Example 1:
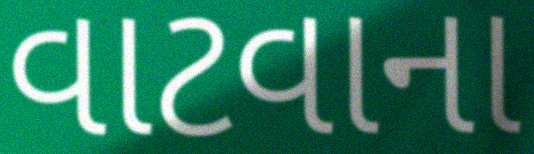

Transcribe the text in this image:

વાટવાના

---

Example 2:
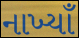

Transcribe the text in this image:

નાખ્યાઁ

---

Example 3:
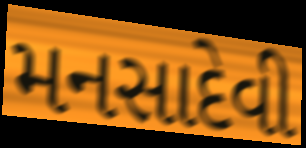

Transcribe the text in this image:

મનસાદેવી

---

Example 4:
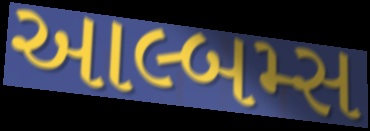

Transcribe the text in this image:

આલ્બમ્સ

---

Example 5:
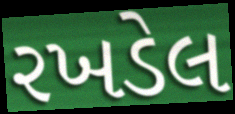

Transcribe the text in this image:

રખડેલ